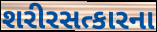
શરીરસત્કારના